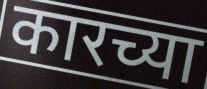
कारच्या